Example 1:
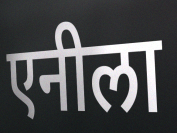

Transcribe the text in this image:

एनीला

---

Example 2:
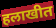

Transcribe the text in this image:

हलाखीत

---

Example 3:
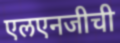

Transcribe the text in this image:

एलएनजीची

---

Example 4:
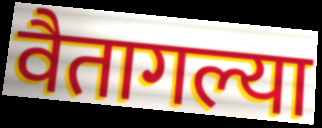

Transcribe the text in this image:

वैतागल्या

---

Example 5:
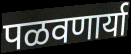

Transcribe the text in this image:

पळवणार्या